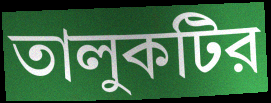
তালুকটির